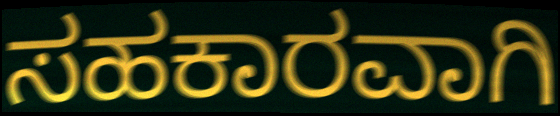
ಸಹಕಾರವಾಗಿ